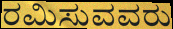
ರಮಿಸುವವರು